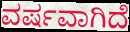
ವರ್ಷವಾಗಿದೆ